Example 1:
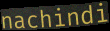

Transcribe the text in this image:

nachindi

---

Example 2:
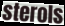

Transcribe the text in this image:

sterols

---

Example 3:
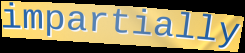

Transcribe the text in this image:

impartially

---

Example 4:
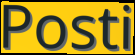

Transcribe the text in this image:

Posti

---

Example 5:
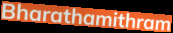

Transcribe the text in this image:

Bharathamithram